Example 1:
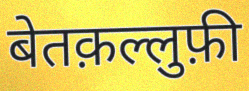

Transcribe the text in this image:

बेतक़ल्लुफ़ी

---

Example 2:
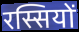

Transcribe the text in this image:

रस्सियों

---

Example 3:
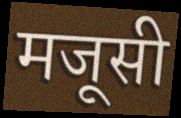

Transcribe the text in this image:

मजूसी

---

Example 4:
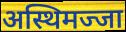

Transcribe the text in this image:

अस्थिमज्जा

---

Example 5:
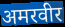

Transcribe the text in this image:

अमरवीर